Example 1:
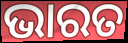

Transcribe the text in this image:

ଭାରତ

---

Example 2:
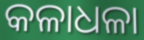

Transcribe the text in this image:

କଳାଧଳା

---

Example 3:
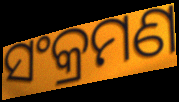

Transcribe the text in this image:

ସଂକ୍ରମଣ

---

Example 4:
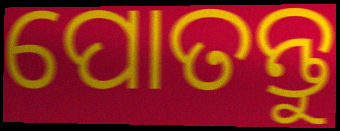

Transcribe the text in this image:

ପୋତନ୍ତୁ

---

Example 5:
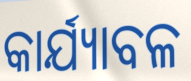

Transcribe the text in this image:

କାର୍ଯ୍ୟାବଳ